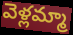
వెళ్లమ్మా